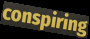
conspiring